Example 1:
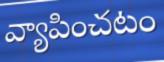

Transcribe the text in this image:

వ్యాపించటం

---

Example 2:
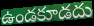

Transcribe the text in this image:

ఉండకూడదు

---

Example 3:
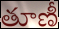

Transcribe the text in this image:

తూణీ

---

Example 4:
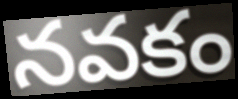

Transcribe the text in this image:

నవకం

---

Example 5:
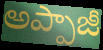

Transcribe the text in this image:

అప్పాజీ